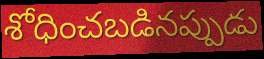
శోధించబడినప్పుడు